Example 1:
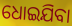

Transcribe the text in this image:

ଧୋଇଯିବା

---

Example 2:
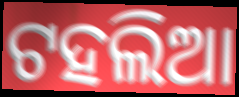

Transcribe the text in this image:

ଟହଲିଆ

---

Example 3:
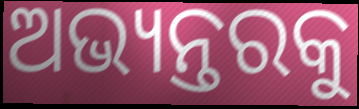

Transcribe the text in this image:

ଅଭ୍ୟନ୍ତରକୁ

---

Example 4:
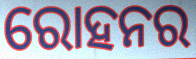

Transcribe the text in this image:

ରୋହନର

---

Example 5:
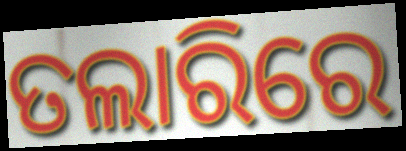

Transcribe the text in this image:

ତଲାରିରେ